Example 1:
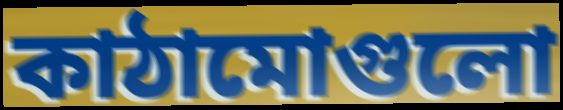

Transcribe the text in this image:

কাঠামোগুলো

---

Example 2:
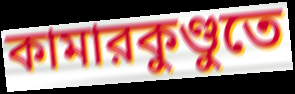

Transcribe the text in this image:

কামারকুণ্ডুতে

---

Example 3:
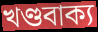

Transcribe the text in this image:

খণ্ডবাক্য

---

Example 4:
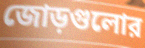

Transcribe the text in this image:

জোড়গুলোর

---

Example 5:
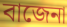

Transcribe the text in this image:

বাজেনা